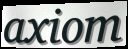
axiom